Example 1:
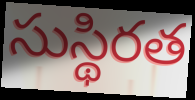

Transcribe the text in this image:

సుస్థిరత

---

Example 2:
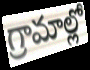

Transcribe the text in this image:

గ్రామాల్లో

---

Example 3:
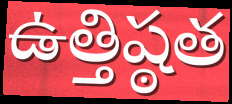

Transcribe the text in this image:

ఉత్తిష్ఠత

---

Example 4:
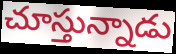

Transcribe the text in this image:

చూస్తున్నాడు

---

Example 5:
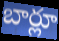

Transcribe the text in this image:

బార్లూ